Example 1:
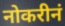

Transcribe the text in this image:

नोकरीनं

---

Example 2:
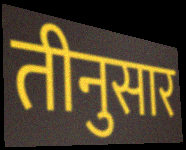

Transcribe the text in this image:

तीनुसार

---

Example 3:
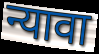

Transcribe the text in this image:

न्यावा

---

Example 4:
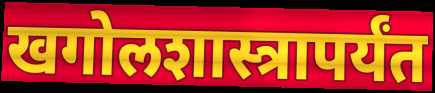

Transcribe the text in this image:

खगोलशास्त्रापर्यंत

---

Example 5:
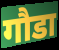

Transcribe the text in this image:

गौडा